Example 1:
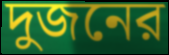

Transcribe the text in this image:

দুজনের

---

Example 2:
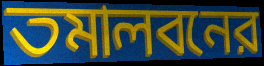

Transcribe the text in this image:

তমালবনের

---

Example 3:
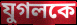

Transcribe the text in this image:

যুগলকে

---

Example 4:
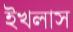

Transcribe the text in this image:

ইখলাস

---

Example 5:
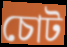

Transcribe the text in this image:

চোট